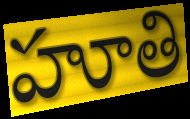
హూతి